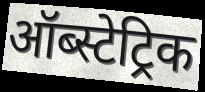
ऑब्स्टेट्रिक